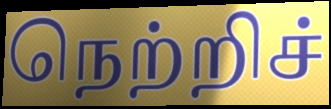
நெற்றிச்